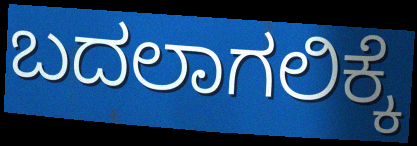
ಬದಲಾಗಲಿಕ್ಕೆ